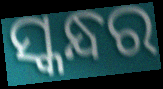
ସ୍କନ୍ଧର